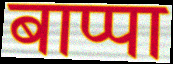
बाप्पा